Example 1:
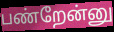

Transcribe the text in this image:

பண்றேன்னு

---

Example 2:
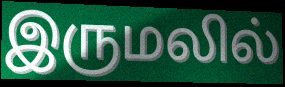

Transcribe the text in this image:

இருமலில்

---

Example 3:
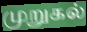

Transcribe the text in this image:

முறுகல்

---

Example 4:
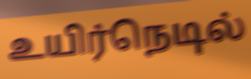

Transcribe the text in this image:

உயிர்நெடில்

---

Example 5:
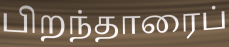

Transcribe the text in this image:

பிறந்தாரைப்